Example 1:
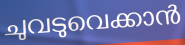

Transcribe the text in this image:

ചുവടുവെക്കാൻ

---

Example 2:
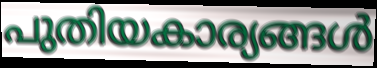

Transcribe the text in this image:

പുതിയകാര്യങ്ങൾ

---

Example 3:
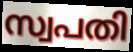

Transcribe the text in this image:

സ്വപതി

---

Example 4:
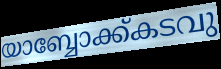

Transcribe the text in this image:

യാബ്ബോക്ക്കടവു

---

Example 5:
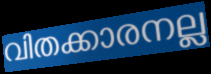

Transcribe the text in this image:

വിതക്കാരനല്ല